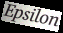
Epsilon